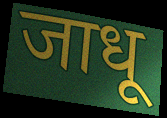
जाधू